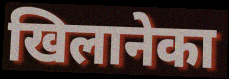
खिलानेका